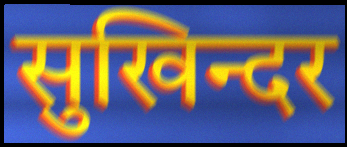
सुखिन्दर